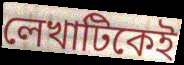
লেখাটিকেই